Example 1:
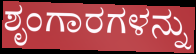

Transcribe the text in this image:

ಶೃಂಗಾರಗಳನ್ನು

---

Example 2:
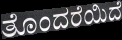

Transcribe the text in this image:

ತೊಂದರೆಯಿದೆ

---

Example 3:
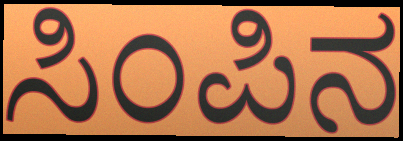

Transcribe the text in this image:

ಸಿಂಪಿನ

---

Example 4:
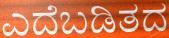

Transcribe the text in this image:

ಎದೆಬಡಿತದ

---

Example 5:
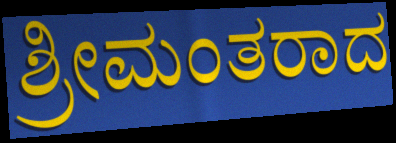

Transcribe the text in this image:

ಶ್ರೀಮಂತರಾದ